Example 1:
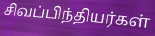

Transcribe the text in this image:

சிவப்பிந்தியர்கள்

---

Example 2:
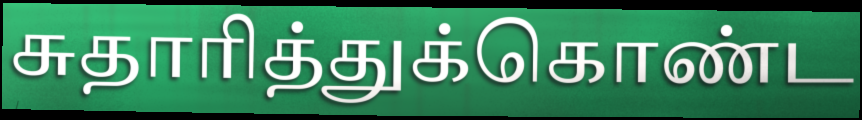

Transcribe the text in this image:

சுதாரித்துக்கொண்ட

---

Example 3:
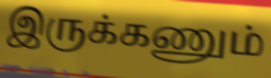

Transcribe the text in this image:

இருக்கணும்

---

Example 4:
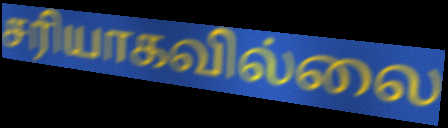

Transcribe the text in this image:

சரியாகவில்லை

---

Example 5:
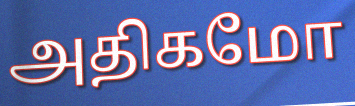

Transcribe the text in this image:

அதிகமோ